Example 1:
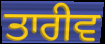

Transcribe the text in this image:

ਤਾਰੀਵ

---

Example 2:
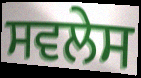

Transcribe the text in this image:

ਸਵਲੇਸ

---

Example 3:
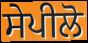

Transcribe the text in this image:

ਸੇਪੀਲੋ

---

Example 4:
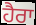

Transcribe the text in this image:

ਹੈਰਾ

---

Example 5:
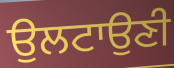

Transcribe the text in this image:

ਉਲਟਾਉਣੀ